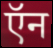
ऍन